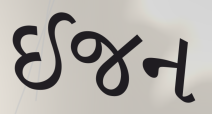
ઈજન